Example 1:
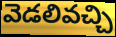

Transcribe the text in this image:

వెడలివచ్చి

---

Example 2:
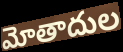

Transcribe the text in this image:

మోతాదుల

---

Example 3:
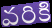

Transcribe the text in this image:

వరికి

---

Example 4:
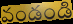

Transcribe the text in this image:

వండండి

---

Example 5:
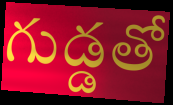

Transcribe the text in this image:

గుడ్డతో